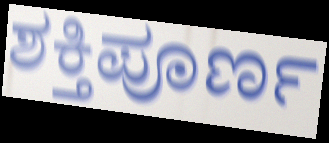
ಶಕ್ತಿಪೂರ್ಣ